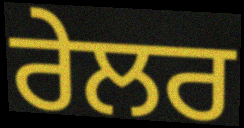
ਰੇਲਰ